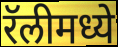
रॅलीमध्ये